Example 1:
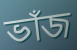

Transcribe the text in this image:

ভাঁজ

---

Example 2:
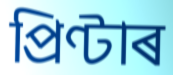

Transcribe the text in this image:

প্ৰিণ্টাৰ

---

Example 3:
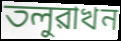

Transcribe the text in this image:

তলুৱাখন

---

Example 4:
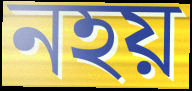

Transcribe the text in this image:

নহয়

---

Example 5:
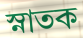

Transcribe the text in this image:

স্নাতক